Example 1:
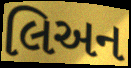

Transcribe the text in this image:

લિઅન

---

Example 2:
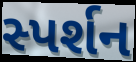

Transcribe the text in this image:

સ્પર્શન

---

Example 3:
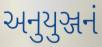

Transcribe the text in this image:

અનુયુઞ્જનં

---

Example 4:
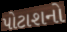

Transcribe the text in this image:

પોટાશનો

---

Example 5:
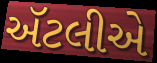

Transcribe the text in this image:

ઍટલીએ